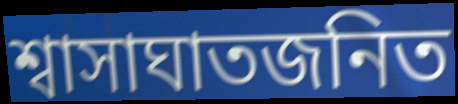
শ্বাসাঘাতজনিত